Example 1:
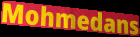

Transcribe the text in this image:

Mohmedans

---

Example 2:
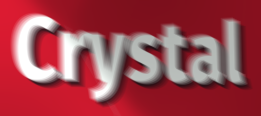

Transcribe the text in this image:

Crystal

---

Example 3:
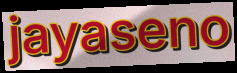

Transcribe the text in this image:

jayaseno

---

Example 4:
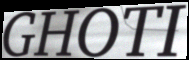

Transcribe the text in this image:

GHOTI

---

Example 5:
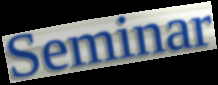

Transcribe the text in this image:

Seminar